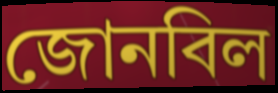
জোনবিল